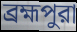
ব্রহ্মপুরা